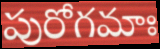
పురోగమాః